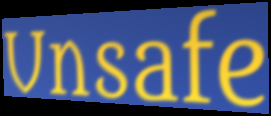
Unsafe